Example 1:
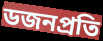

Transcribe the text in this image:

ডজনপ্রতি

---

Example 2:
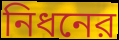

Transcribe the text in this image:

নিধনের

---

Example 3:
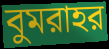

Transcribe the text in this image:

বুমরাহর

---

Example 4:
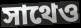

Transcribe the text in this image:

সাথেও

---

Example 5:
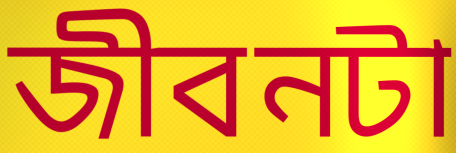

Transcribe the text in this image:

জীবনটা